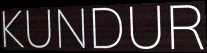
KUNDUR